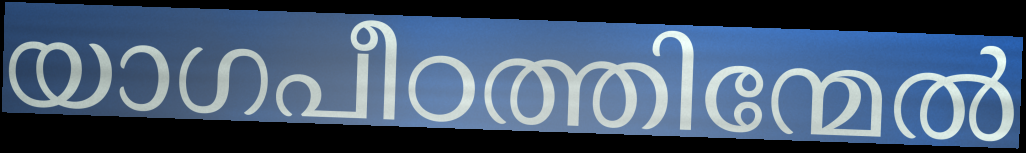
യാഗപീഠത്തിന്മേൽ